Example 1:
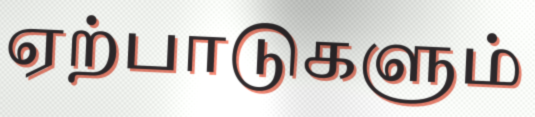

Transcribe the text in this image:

ஏற்பாடுகளும்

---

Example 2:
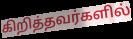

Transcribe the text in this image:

கிறித்தவர்களில்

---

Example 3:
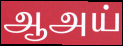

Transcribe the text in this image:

ஆஅய்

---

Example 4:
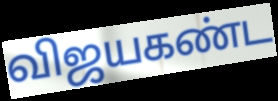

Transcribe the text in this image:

விஜயகண்ட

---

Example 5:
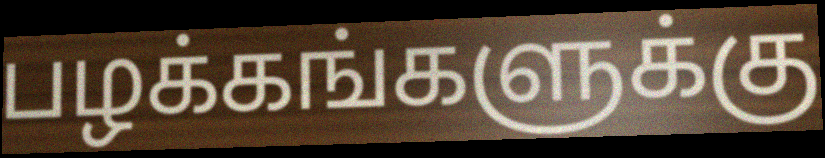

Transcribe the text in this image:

பழக்கங்களுக்கு